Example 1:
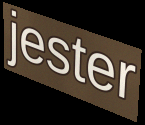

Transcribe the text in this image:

jester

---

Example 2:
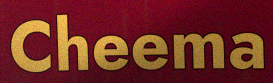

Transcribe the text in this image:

Cheema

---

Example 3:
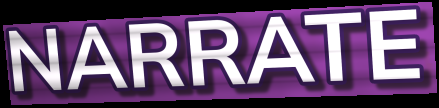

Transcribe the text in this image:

NARRATE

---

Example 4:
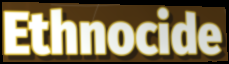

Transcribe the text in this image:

Ethnocide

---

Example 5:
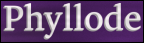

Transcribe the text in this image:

Phyllode